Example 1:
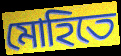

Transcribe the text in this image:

মোহিতে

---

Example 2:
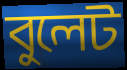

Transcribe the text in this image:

বুলেট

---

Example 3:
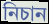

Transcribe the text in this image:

নিচান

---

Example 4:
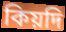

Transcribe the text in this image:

কিয়দি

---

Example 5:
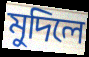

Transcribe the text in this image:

মুদিলে